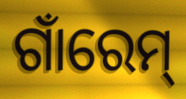
ଗାଁରେମ୍